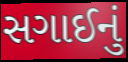
સગાઈનું